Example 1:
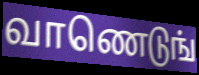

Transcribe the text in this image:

வாணெடுங்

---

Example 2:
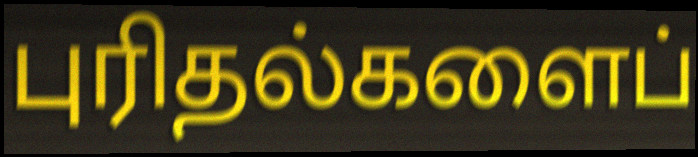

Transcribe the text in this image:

புரிதல்களைப்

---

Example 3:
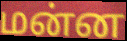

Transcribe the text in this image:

மன்ன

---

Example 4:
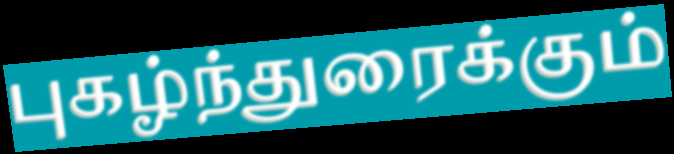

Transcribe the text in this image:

புகழ்ந்துரைக்கும்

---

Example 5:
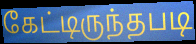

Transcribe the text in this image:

கேட்டிருந்தபடி